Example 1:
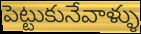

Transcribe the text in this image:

పెట్టుకునేవాళ్ళు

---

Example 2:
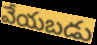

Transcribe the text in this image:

వేయబడు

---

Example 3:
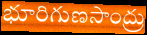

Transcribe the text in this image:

భూరిగుణసాంద్రు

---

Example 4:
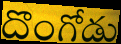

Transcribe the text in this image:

దొంగోడు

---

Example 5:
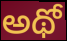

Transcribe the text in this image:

అథో